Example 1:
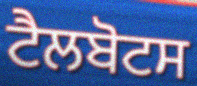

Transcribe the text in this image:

ਟੈਲਬੋਟਸ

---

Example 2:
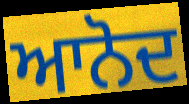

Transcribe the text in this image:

ਆਨੋਦ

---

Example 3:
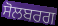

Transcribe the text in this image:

ਸੋਲਬਰਗ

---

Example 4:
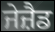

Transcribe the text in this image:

ਜੇਜ਼ੈਡ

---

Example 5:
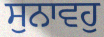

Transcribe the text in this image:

ਸੁਨਾਵਹੁ